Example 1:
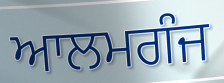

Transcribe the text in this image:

ਆਲਮਗੰਜ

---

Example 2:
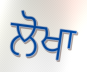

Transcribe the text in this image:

ਲੋਖਾ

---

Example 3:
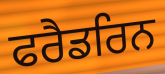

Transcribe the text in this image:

ਫਰੈਡਰਿਨ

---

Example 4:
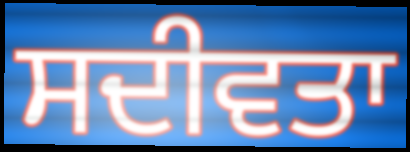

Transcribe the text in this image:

ਸਦੀਵਤਾ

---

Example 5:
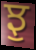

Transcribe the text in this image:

ਝੁ